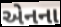
એનના